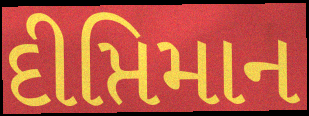
દીપ્તિમાન